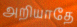
அறியாதே